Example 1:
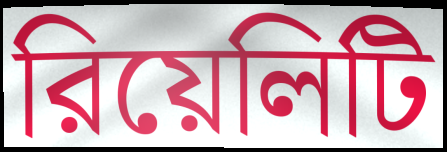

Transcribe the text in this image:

রিয়েলিটি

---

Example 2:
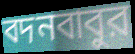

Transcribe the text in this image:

বদনবাবুর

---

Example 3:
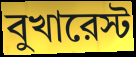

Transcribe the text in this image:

বুখারেস্ট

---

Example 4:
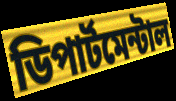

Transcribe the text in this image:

ডিপার্টমেন্টাল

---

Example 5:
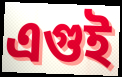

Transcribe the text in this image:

এগুই